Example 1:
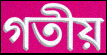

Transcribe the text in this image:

গতীয়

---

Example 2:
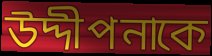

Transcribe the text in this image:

উদ্দীপনাকে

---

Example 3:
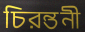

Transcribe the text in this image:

চিরন্তনী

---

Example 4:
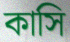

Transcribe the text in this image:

কাসি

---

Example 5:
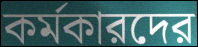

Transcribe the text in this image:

কর্মকারদের